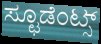
ಸ್ಟೂಡೆಂಟ್ಸ್